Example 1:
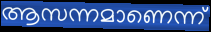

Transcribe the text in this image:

ആസന്നമാണെന്ന്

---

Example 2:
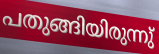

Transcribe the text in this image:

പതുങ്ങിയിരുന്നു്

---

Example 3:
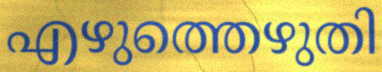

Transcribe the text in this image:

എഴുത്തെഴുതി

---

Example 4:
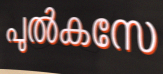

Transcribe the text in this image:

പുൽകസേ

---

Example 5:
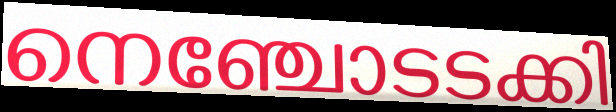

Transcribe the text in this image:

നെഞ്ചോടടക്കി